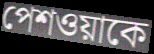
পেশওয়াকে